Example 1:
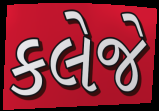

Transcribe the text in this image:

કલેજે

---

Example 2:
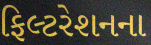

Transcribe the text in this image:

ફિલ્ટરેશનના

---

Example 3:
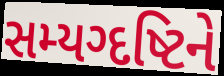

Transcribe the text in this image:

સમ્યગ્દષ્ટિને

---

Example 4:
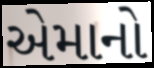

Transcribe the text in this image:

એમાનો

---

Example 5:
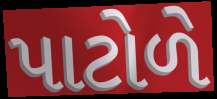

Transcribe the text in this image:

પાટોળે